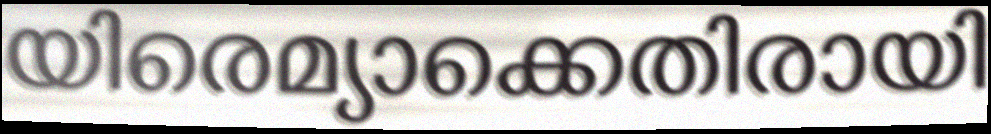
യിരെമ്യാക്കെതിരായി